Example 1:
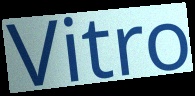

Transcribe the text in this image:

Vitro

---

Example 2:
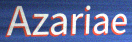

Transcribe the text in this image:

Azariae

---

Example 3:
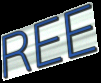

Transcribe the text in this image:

REE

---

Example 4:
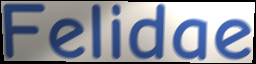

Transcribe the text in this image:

Felidae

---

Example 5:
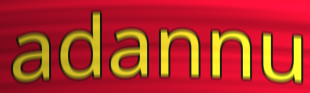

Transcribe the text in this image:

adannu